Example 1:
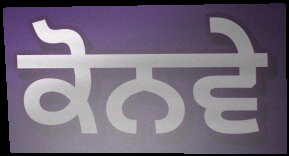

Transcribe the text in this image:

ਕੋਨਵੇ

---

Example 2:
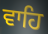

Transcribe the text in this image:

ਵਾਹਿ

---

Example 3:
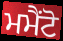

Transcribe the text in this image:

ਮਮੈਂਟੋ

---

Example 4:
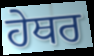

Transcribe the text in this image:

ਹੇਥਰ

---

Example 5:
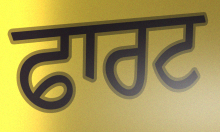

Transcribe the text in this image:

ਫਾਰਟ